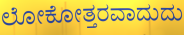
ಲೋಕೋತ್ತರವಾದುದು